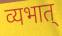
व्यभात्